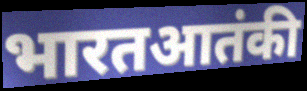
भारतआतंकी